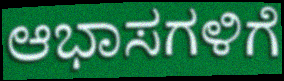
ಆಭಾಸಗಳಿಗೆ